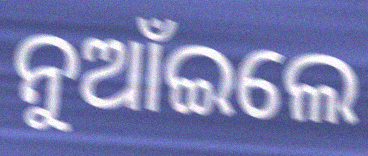
ନୁଆଁଇଲେ